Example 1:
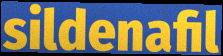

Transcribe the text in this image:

sildenafil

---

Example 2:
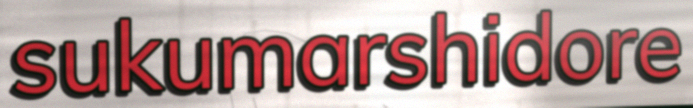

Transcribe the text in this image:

sukumarshidore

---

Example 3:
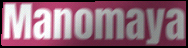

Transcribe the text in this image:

Manomaya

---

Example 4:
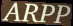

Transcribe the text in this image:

ARPP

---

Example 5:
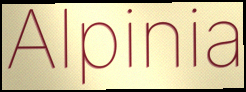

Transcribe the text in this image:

Alpinia